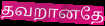
தவறானதே